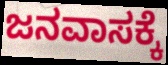
ಜನವಾಸಕ್ಕೆ